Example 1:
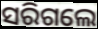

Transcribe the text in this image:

ସରିଗଲେ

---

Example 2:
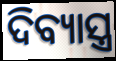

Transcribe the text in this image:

ଦିବ୍ୟାସ୍ତ୍ର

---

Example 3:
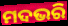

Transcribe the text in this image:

ମଦଭରି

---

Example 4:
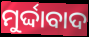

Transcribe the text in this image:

ମୁର୍ଦ୍ଦାବାଦ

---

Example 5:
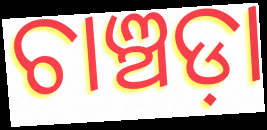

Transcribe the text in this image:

ଚାଞ୍ଚଡ଼ା